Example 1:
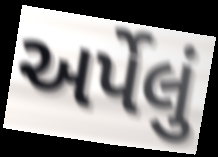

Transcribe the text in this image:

અર્પેલું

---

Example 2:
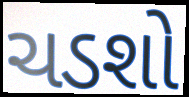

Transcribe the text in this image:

ચડશો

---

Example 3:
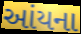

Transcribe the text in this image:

આંયના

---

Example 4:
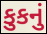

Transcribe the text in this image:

કુકનું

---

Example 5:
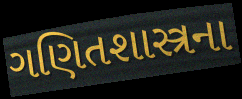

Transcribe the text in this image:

ગણિતશાસ્ત્રના